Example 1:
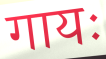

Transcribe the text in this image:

गायः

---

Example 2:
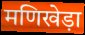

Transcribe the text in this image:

मणिखेड़ा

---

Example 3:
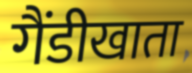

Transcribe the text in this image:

गैंडीखाता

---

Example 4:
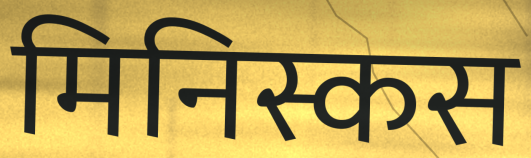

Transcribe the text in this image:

मिनिस्कस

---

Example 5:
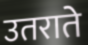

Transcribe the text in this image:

उतराते